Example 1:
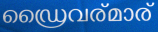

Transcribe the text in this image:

ഡ്രൈവര്മാര്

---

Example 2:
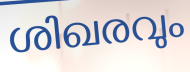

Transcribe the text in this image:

ശിഖരവും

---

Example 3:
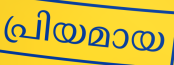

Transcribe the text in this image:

പ്രിയമായ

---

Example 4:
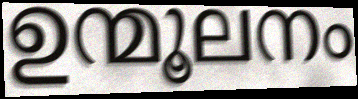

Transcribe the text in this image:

ഉന്മൂലനം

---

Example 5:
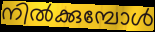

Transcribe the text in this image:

നിൽക്കുമ്പോൾ